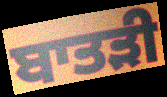
ਬਾਤੜੀ